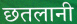
छतलानी